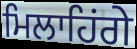
ਮਿਲਾਹਿਂਗੇ